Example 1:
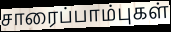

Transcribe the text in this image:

சாரைப்பாம்புகள்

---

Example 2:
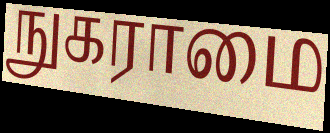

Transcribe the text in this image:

நுகராமை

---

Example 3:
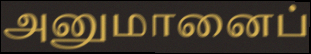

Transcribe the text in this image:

அனுமானைப்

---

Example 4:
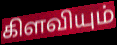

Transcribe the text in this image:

கிளவியும்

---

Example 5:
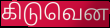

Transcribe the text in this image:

கிடுவென